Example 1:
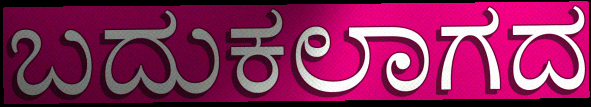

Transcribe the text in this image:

ಬದುಕಲಾಗದ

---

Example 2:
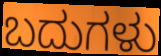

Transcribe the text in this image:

ಬದುಗಳು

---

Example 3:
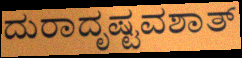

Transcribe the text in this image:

ದುರಾದೃಷ್ಟವಶಾತ್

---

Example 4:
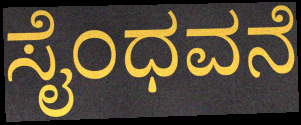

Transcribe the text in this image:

ಸೈಂಧವನೆ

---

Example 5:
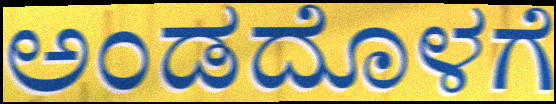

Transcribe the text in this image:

ಅಂಡದೊಳಗೆ